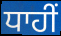
ਧਾਹੀਂ